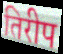
तिरीप